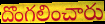
దొంగలించారు